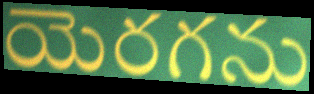
యెరగను